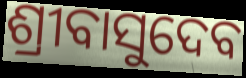
ଶ୍ରୀବାସୁଦେବ